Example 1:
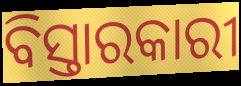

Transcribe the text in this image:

ବିସ୍ତାରକାରୀ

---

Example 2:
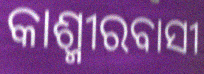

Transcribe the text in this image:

କାଶ୍ମୀରବାସୀ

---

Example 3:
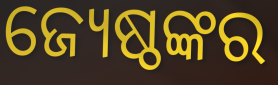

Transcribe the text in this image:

ଜ୍ୟେଷ୍ଠଙ୍କର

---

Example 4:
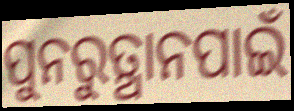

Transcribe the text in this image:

ପୁନରୁତ୍ଥାନପାଇଁ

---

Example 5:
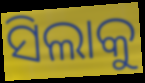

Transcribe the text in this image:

ସିଲାକୁ